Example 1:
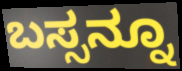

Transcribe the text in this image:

ಬಸ್ಸನ್ನೂ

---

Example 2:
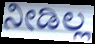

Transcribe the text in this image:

ನೀಡಿಲ್ಲ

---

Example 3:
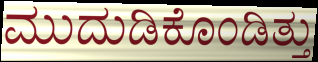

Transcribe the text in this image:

ಮುದುಡಿಕೊಂಡಿತ್ತು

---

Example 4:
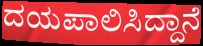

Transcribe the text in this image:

ದಯಪಾಲಿಸಿದ್ದಾನೆ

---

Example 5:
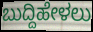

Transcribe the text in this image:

ಬುದ್ದಿಹೇಳಲು